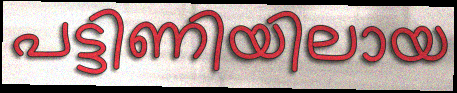
പട്ടിണിയിലായ